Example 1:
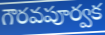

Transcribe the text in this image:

గౌరవపూర్వక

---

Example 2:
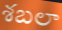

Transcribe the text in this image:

శబలా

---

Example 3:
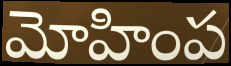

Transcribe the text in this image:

మోహింప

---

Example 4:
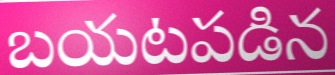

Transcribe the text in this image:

బయటపడిన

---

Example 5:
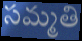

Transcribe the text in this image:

సమ్మతి